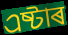
এষ্টাৰ